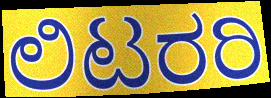
ಲಿಟರರಿ